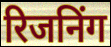
रिजनिंग